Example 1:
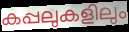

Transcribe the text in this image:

കപ്പലുകളിലും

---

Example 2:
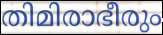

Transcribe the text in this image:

തിമിരാഭീരും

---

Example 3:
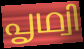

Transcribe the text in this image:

പൃഥ്വി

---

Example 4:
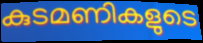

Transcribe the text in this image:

കുടമണികളുടെ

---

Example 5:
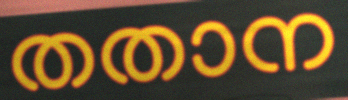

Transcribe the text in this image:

തതാന